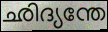
ഛിദ്യന്തേ